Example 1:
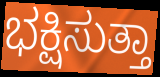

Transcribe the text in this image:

ಭಕ್ಷಿಸುತ್ತಾ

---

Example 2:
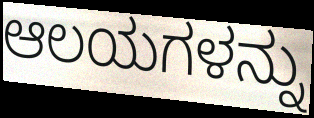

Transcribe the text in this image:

ಆಲಯಗಳನ್ನು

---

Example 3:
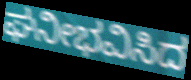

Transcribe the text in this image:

ಘನೀಭವಿಸಿದ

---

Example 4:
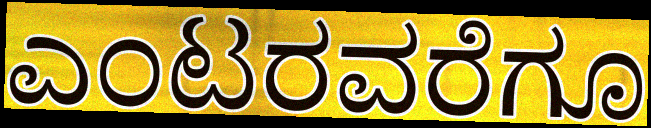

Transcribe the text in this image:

ಎಂಟರವರೆಗೂ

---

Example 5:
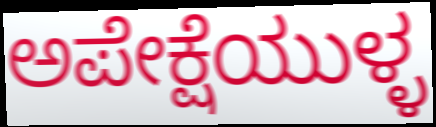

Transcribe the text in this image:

ಅಪೇಕ್ಷೆಯುಳ್ಳ